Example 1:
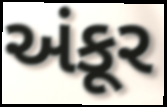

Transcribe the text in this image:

અંકૂર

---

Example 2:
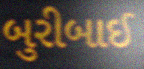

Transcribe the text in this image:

બુરીબાઈ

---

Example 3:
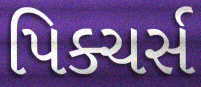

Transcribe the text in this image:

પિક્ચર્સ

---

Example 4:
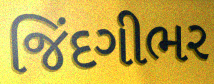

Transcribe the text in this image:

જિંદગીભર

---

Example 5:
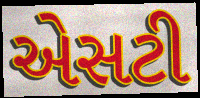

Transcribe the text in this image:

એસટી